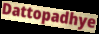
Dattopadhye